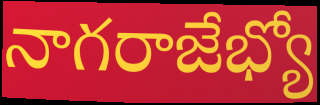
నాగరాజేభ్యో